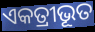
ଏକତ୍ରୀଭୂତ